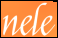
nele